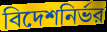
বিদেশনির্ভর